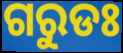
ଗରୁଡଃ